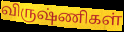
விருஷ்ணிகள்